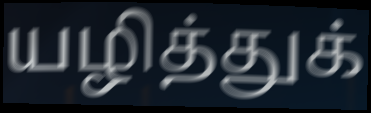
யழித்துக்